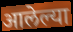
आलेल्या